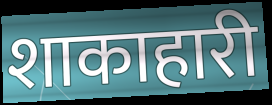
शाकाहारी